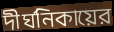
দীর্ঘনিকায়ের